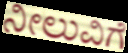
ನೀಲುವಿಗೆ